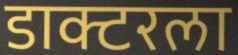
डाक्टरला